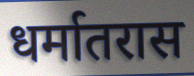
धर्मातरास